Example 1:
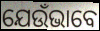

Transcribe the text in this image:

ଯେଉଁଭାବେ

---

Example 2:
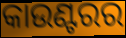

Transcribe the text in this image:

କାଉଣ୍ଟରର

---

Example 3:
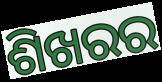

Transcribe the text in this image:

ଶିଖରର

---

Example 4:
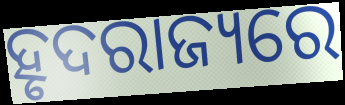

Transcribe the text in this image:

ହୃଦରାଜ୍ୟରେ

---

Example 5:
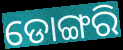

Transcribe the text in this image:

ଡୋଙ୍ଗରି